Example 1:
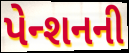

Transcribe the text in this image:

પેન્શનની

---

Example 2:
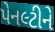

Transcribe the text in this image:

પેનલ્ટીને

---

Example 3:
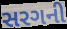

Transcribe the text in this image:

સરગની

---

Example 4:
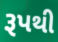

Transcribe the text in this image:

રૂપથી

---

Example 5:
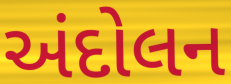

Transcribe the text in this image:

અંદોલન